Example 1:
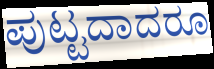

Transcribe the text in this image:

ಪುಟ್ಟದಾದರೂ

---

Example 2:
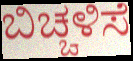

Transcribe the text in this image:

ಬಿಚ್ಚಳಿಸೆ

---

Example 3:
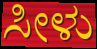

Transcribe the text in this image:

ಸೀಳು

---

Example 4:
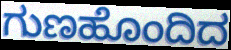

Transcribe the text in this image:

ಗುಣಹೊಂದಿದ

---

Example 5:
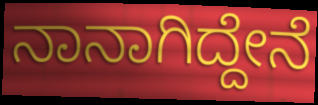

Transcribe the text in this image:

ನಾನಾಗಿದ್ದೇನೆ